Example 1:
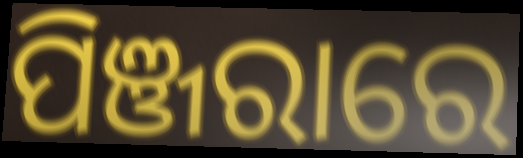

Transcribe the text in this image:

ପିଞ୍ଜରାରେ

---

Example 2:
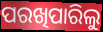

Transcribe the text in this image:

ପରଖିପାରିଲୁ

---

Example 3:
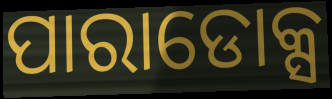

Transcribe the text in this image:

ପାରାଡୋକ୍ସ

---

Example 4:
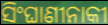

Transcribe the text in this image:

ସିଂଘାଣୀନାକୀ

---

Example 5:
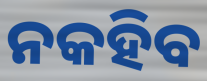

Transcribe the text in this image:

ନକହିବ